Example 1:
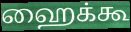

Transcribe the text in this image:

ஹைக்கூ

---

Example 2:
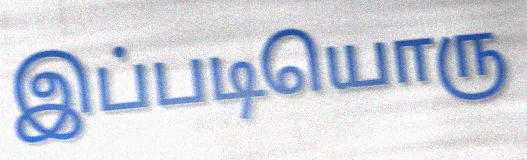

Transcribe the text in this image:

இப்படியொரு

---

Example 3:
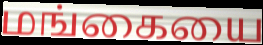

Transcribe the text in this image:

மங்கையை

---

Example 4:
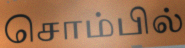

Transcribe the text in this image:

சொம்பில்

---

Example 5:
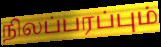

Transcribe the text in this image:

நிலப்பரப்பும்